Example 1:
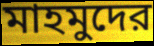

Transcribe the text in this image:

মাহমুদের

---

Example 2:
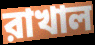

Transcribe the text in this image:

রাখাল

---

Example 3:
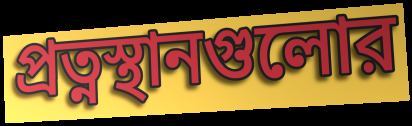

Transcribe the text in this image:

প্রত্নস্থানগুলোর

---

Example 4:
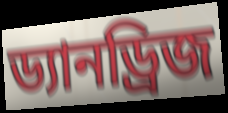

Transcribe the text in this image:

ড্যানড্রিজ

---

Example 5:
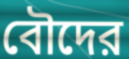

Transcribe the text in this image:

বৌদের